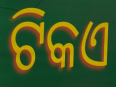
ଟିକଏ